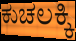
ಕುಚಲಕ್ಕಿ